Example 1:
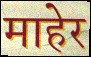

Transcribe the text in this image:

माहेर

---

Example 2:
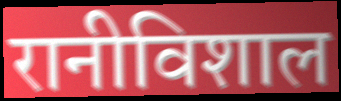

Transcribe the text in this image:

रानीविशाल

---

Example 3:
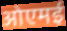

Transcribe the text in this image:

ओएमई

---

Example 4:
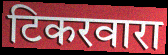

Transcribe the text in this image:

टिकरवारा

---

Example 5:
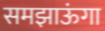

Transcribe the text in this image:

समझाऊंगा